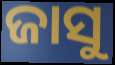
ଜାସୁ